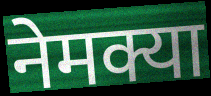
नेमक्या